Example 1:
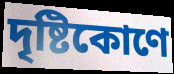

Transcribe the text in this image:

দৃষ্টিকোণে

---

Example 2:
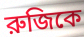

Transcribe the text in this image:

রুজিকে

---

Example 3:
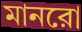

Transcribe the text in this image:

মানরো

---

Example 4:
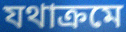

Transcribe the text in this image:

যথাক্রমে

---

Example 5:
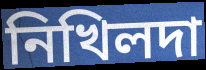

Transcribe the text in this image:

নিখিলদা